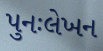
પુનઃલેખન